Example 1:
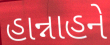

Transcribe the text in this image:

હાન્નાહને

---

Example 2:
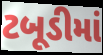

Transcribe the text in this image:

ટબૂડીમાં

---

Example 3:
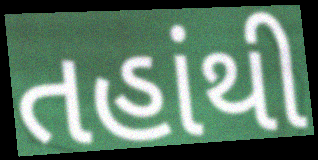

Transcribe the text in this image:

તહાંથી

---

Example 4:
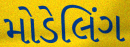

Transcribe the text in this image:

મોડેલિંગ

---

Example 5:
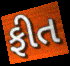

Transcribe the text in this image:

ફીત